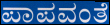
ಪಾಪವಂತೆ